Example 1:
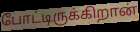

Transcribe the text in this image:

போட்டிருக்கிறான்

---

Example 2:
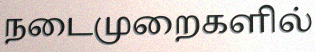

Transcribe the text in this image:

நடைமுறைகளில்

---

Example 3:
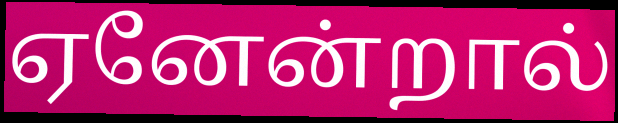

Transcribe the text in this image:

ஏனேன்றால்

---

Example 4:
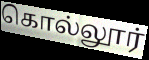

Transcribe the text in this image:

கொல்லூர்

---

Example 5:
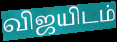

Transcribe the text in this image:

விஜயிடம்